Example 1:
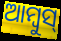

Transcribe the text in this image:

ଆମ୍ବୁସ୍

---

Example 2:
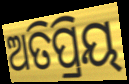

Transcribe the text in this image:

ଅତିପ୍ରିୟ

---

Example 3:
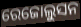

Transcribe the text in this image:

ରେଜୋଲୁସନ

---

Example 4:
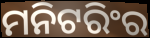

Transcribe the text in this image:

ମନିଟରିଂର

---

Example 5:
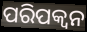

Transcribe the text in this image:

ପରିପକ୍ବନ